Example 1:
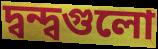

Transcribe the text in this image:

দ্বন্দ্বগুলো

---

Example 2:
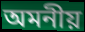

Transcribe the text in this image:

অমনীয়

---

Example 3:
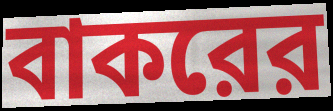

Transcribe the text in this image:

বাকরের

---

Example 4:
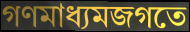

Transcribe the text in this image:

গণমাধ্যমজগতে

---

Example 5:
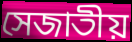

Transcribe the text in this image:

সেজাতীয়